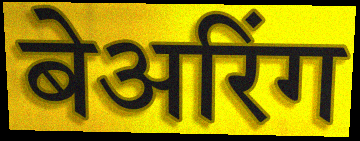
बेअरिंग